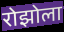
रोझोला